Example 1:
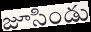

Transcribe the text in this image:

జూసిండు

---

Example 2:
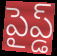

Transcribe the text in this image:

పైప్డ్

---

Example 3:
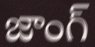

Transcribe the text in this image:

జాంగ్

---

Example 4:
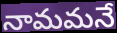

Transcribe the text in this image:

నామమనే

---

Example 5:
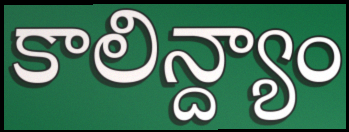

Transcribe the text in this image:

కాలిన్ద్యాం